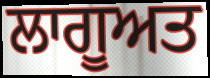
ਲਾਗੂਅਤ